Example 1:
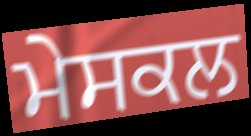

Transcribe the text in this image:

ਮੇਸਕਲ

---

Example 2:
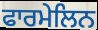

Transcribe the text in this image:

ਫਾਰਮੇਲਿਨ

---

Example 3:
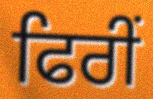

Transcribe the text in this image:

ਫਿਰੀਂ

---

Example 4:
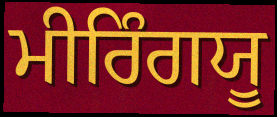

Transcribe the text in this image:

ਮੀਰਿੰਗਯੂ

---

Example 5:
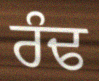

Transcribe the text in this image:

ਰੰਢ